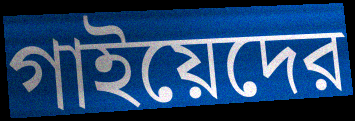
গাইয়েদের